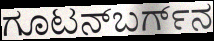
ಗೂಟನ್‌ಬರ್ಗ್‌ನ